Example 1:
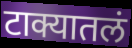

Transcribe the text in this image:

टाक्यातलं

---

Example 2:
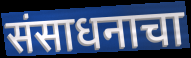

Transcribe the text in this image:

संसाधनाचा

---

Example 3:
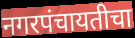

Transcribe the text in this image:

नगरपंचायतीचा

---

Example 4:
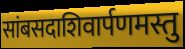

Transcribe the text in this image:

सांबसदाशिवार्पणमस्तु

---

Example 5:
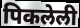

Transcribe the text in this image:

पिकलेली